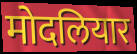
मोदलियार